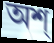
অশ্